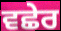
ਵਛੇਰ